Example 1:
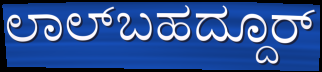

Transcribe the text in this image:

ಲಾಲ್‌ಬಹದ್ದೂರ್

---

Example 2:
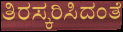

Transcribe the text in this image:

ತಿರಸ್ಕರಿಸಿದಂತೆ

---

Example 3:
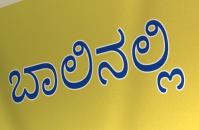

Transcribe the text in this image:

ಬಾಲಿನಲ್ಲಿ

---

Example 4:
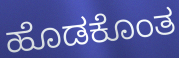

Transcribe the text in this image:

ಹೊಡಕೊಂತ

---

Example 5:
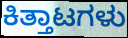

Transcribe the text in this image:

ಕಿತ್ತಾಟಗಳು